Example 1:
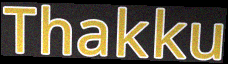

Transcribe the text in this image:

Thakku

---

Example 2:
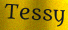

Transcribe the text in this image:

Tessy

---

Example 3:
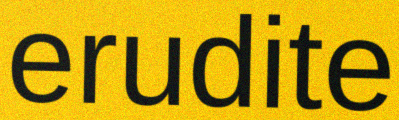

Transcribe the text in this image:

erudite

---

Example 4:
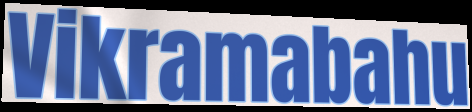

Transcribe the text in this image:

Vikramabahu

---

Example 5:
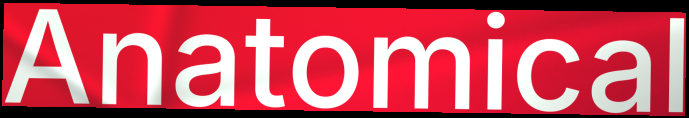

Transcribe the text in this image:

Anatomical